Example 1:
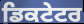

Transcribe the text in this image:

ਡਿਕਟੇਟਰ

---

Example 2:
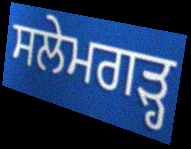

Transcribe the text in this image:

ਸਲੇਮਗੜ੍ਹ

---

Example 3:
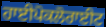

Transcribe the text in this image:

ਹਾਈਪੋਕਲੋਰਾਈਟ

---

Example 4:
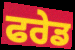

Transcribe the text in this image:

ਫਰੇਡ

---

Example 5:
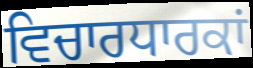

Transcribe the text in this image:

ਵਿਚਾਰਧਾਰਕਾਂ